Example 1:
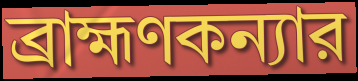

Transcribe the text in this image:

ব্রাহ্মণকন্যার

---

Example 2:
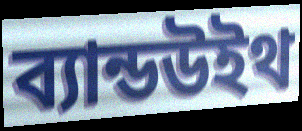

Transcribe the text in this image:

ব্যান্ডউইথ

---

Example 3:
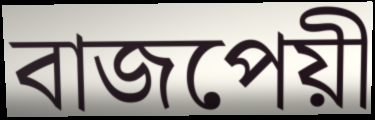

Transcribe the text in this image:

বাজপেয়ী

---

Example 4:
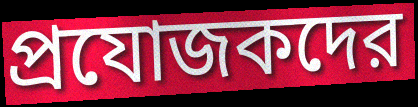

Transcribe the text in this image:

প্রযোজকদের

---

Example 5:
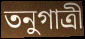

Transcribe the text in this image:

তনুগাত্রী